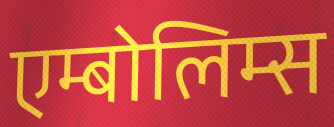
एम्बोलिम्स